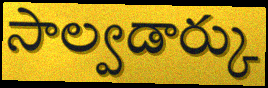
సాల్వడార్కు